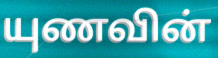
யுணவின்